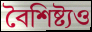
বৈশিষ্ট্যও